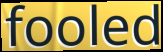
fooled